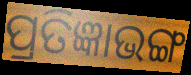
ପ୍ରତିଜ୍ଞାଭଙ୍ଗ